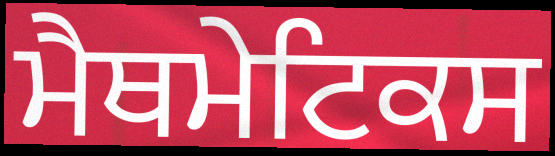
ਮੈਥਮੇਟਿਕਸ